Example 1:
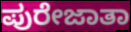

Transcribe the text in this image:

ಪುರೇಜಾತಾ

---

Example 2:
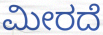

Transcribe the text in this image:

ಮೀರದೆ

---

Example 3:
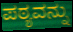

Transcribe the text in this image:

ಪಠ್ಯವನ್ನು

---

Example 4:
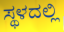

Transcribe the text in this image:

ಸ್ಥಳದಲ್ಲಿ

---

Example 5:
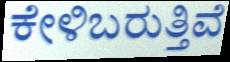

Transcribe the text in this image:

ಕೇಳಿಬರುತ್ತಿವೆ